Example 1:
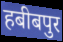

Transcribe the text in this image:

हबीबपुर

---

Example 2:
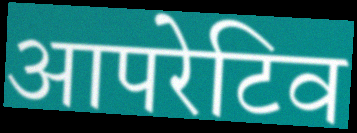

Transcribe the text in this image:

आपरेटिव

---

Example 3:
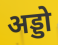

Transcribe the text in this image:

अड्डो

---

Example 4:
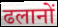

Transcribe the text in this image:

ढलानों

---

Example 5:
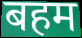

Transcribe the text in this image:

बहम